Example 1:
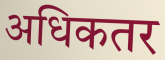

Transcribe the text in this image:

अधिकतर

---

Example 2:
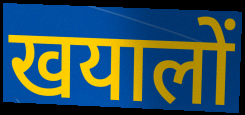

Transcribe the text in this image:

खयालों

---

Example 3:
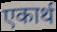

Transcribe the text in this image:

एकार्थ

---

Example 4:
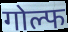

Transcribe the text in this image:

गोल्फ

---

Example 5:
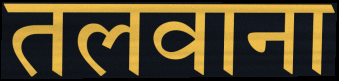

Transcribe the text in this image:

तलवाना